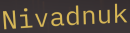
Nivadnuk